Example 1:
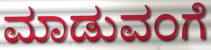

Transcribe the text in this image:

ಮಾಡುವಂಗೆ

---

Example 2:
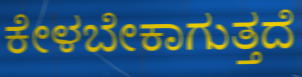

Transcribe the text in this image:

ಕೇಳಬೇಕಾಗುತ್ತದೆ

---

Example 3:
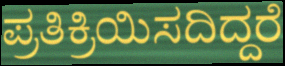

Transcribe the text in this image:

ಪ್ರತಿಕ್ರಿಯಿಸದಿದ್ದರೆ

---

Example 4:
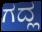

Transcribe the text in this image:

ಗದ್ಲ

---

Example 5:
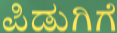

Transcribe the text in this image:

ಪಿಡುಗಿಗೆ